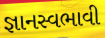
જ્ઞાનસ્વભાવી